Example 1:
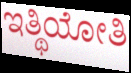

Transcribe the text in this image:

ಇತ್ಥಿಯೋತಿ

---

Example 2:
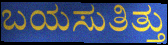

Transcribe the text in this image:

ಬಯಸುತಿತ್ತು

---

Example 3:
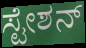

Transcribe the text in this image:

ಸ್ಟೇಶನ್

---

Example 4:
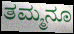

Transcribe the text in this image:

ತಮ್ಮನೂ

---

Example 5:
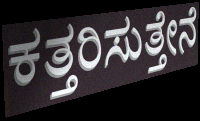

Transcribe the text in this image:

ಕತ್ತರಿಸುತ್ತೇನೆ